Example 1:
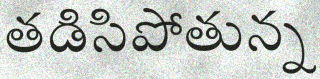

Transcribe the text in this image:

తడిసిపోతున్న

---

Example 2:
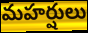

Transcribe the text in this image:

మహర్షులు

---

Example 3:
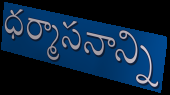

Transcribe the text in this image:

ధర్మాసనాన్ని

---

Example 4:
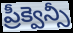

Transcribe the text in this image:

ప్రీక్వెన్సీ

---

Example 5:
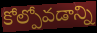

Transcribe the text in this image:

కోల్పోవడాన్ని